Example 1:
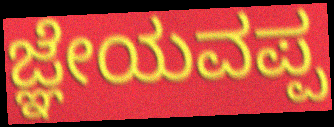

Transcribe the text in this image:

ಜ್ಞೇಯವಪ್ಪ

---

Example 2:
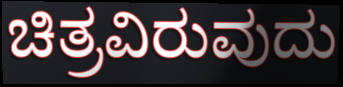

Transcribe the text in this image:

ಚಿತ್ರವಿರುವುದು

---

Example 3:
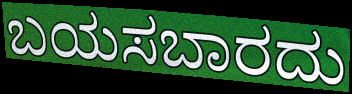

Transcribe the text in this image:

ಬಯಸಬಾರದು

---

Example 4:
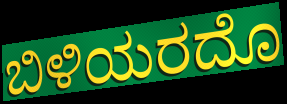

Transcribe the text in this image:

ಬಿಳಿಯರದೊ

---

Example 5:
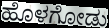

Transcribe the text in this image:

ಹೊಳಗೋಡು